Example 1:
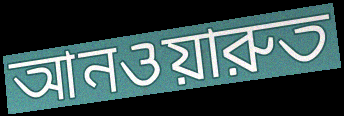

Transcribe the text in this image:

আনওয়ারুত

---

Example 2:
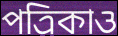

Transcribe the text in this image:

পত্রিকাও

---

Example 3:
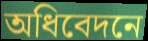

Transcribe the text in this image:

অধিবেদনে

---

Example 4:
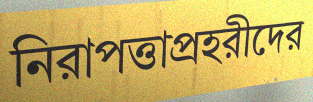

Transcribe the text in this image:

নিরাপত্তাপ্রহরীদের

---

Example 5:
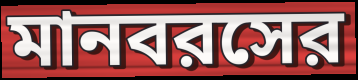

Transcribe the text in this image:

মানবরসের